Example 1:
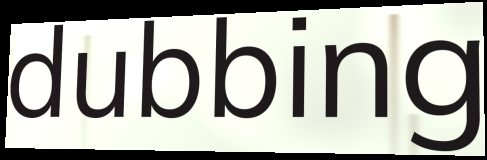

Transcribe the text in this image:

dubbing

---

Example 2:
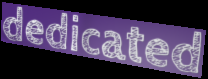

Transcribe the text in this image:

dedicated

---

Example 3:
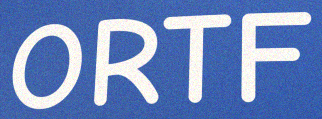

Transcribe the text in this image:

ORTF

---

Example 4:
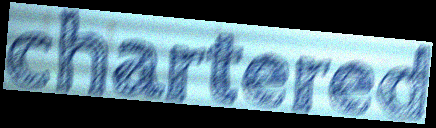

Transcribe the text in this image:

chartered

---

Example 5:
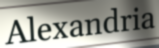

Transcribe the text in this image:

Alexandria